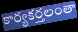
కార్యకర్తలంతా